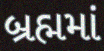
બ્રહ્મમાં